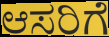
ಆಸರಿಗೆ